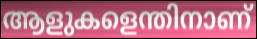
ആളുകളെന്തിനാണ്